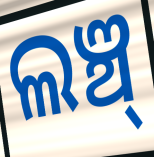
ଲଞ୍ଚ୍